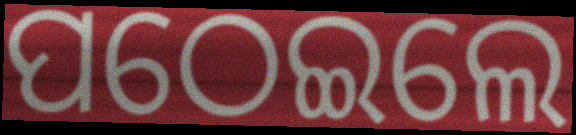
ପଠେଇଲେ